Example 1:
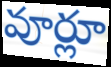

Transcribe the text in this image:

వూర్లూ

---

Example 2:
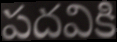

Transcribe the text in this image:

పదవికి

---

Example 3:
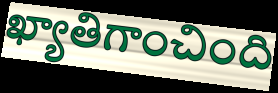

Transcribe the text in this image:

ఖ్యాతిగాంచింది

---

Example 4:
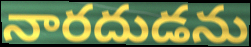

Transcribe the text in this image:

నారదుడను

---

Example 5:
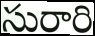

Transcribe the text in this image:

సురారి